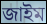
জাইম